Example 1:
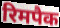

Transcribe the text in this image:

रिमपैक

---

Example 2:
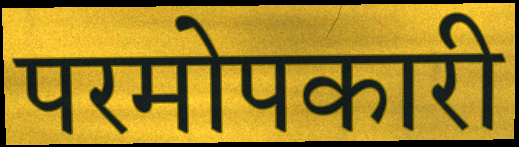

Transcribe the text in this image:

परमोपकारी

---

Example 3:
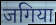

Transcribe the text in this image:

जगिया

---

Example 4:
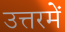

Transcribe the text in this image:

उत्तरमें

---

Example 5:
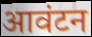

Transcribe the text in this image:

आवंटन